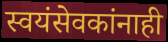
स्वयंसेवकांनाही